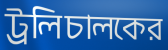
ট্রলিচালকের